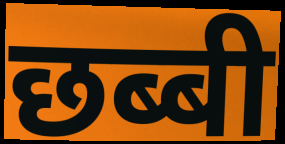
छब्बी